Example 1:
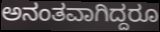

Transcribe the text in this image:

ಅನಂತವಾಗಿದ್ದರೂ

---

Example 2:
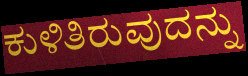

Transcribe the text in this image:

ಕುಳಿತಿರುವುದನ್ನು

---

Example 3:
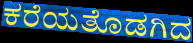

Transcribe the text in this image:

ಕರೆಯತೊಡಗಿದ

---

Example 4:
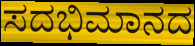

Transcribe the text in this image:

ಸದಭಿಮಾನದ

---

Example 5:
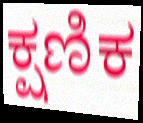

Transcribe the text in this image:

ಕ್ಷಣಿಕ